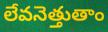
లేవనెత్తుతాం